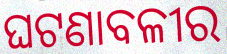
ଘଟଣାବଳୀର